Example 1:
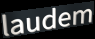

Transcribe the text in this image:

laudem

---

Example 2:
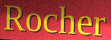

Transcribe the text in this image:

Rocher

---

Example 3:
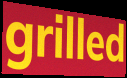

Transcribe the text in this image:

grilled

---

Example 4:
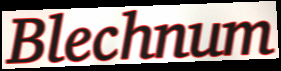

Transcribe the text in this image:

Blechnum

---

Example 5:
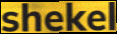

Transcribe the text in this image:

shekel